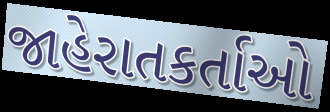
જાહેરાતકર્તાઓ